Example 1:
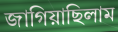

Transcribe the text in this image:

জাগিয়াছিলাম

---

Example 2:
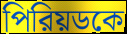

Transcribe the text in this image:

পিরিয়ডকে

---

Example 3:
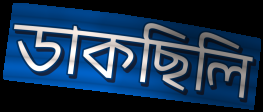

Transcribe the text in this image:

ডাকছিলি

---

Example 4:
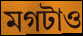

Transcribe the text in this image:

মগটাও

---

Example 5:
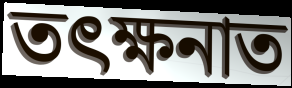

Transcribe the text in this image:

তৎক্ষনাত